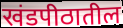
खंडपीठातील